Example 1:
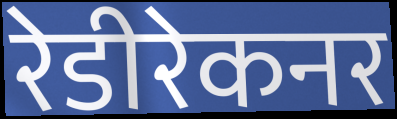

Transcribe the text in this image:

रेडीरेकनर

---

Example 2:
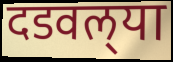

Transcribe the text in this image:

दडवल्या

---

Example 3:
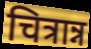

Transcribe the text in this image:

चित्रान्न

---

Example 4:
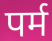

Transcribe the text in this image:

पर्म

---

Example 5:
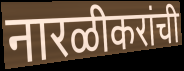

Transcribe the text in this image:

नारळीकरांची